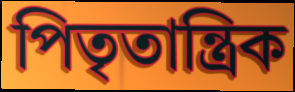
পিতৃতান্ত্ৰিক